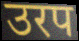
उरप